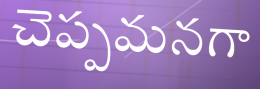
చెప్పమనగా